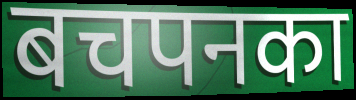
बचपनका